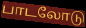
பாடலோடு